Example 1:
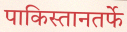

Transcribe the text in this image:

पाकिस्तानतर्फे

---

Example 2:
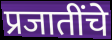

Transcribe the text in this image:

प्रजातींचे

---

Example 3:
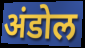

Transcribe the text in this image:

अंडोल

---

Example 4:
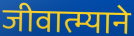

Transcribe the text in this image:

जीवात्म्याने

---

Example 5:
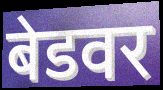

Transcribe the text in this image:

बेडवर